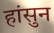
हांसुन